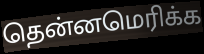
தென்னமெரிக்க